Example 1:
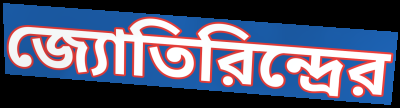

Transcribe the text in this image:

জ্যোতিরিন্দ্রের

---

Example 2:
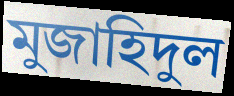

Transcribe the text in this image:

মুজাহিদুল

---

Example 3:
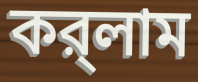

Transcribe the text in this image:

কর্‌লাম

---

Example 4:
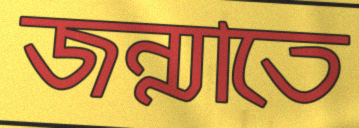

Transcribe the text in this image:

জন্মাতে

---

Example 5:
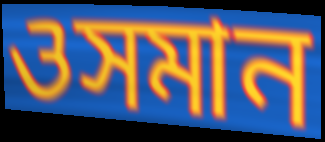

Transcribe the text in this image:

ওসমান